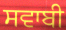
ਸਵਾਬੀ